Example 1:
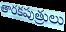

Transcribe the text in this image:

తారకపుత్రులు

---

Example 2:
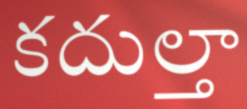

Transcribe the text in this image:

కదుల్తా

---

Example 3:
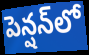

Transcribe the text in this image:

పెన్షన్‌లో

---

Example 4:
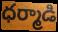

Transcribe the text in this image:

ధర్మాడి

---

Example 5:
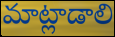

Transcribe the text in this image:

మాట్లాడాలి